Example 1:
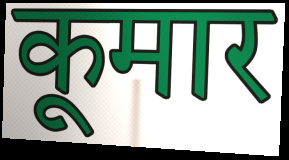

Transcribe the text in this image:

कूमार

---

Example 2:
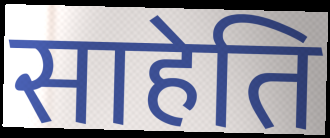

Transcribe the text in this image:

साहेति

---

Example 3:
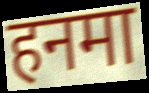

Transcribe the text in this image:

हनमा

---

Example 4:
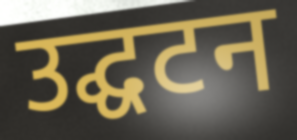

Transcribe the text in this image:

उद्घटन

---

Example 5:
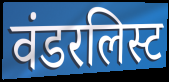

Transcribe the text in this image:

वंडरलिस्ट